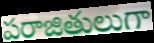
పరాజితులుగా